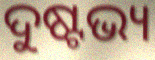
ଦୁଷ୍ଟଭ୍ୟ